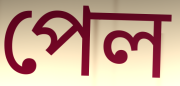
পেল